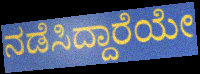
ನಡೆಸಿದ್ದಾರೆಯೇ